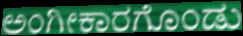
ಅಂಗೀಕಾರಗೊಂಡು